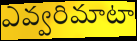
ఎవ్వరిమాటా